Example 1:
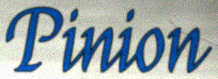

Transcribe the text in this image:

Pinion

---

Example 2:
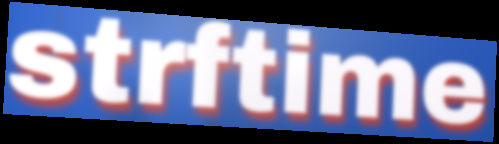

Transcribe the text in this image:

strftime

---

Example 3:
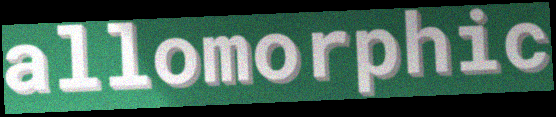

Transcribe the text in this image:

allomorphic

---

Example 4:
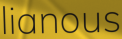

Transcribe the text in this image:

lianous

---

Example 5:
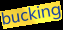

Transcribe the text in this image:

bucking